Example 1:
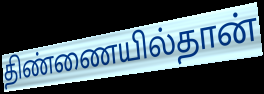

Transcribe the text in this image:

திண்ணையில்தான்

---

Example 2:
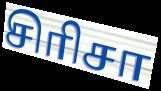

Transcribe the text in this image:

சிரிசா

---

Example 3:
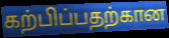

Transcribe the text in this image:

கற்பிப்பதற்கான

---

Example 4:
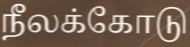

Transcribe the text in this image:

நீலக்கோடு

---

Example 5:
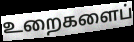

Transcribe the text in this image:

உறைகளைப்